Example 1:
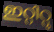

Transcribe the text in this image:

ഇറ്റിറ്റു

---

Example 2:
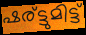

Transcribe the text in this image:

ഷര്ട്ടുമിട്ട്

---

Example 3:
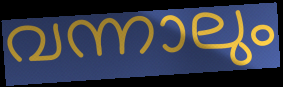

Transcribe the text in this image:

വന്നാലും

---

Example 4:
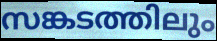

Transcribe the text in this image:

സങ്കടത്തിലും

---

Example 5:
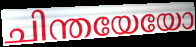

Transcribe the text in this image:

ചിന്തയേയോ